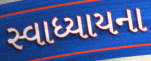
સ્વાધ્યાયના